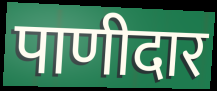
पाणीदार